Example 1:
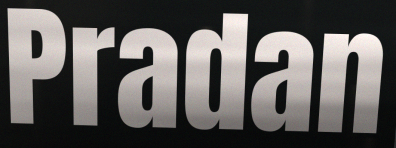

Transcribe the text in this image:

Pradan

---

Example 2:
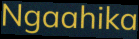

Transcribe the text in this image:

Ngaahika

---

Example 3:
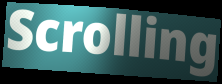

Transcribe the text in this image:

Scrolling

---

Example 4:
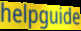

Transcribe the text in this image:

helpguide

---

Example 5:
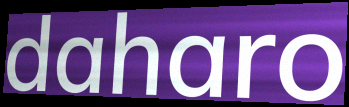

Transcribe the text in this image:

daharo